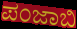
ಪಂಜಾಬಿ